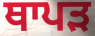
ਥਾਪੜ